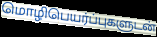
மொழிபெயர்ப்புகளுடன்